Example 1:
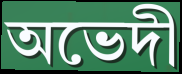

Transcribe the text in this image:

অভেদী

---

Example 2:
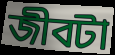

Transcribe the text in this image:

জীবটা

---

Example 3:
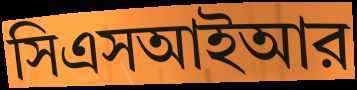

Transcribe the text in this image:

সিএসআইআর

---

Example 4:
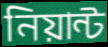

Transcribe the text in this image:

নিয়ান্ট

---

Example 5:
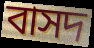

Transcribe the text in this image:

বাসদ